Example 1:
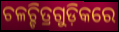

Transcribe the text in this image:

ଚଳଚ୍ଚିତ୍ରଗୁଡ଼ିକରେ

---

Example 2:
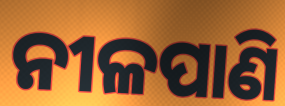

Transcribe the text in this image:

ନୀଳପାଣି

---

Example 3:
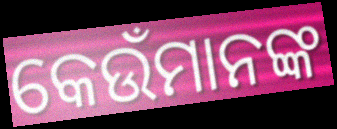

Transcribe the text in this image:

କେଉଁମାନଙ୍କ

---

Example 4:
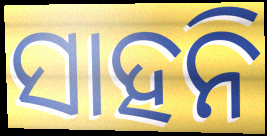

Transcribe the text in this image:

ସାହନି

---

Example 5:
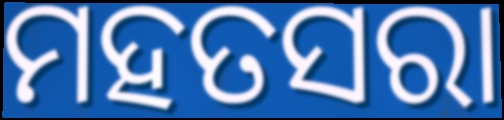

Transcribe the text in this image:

ମହତସରା